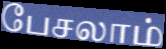
பேசலாம்